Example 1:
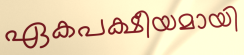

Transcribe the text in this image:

ഏകപക്ഷീയമായി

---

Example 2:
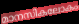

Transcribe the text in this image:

മാനസികലോകം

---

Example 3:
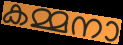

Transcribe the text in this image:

കമ്മനാ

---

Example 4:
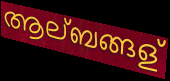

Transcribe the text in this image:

ആല്ബങ്ങള്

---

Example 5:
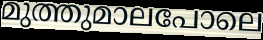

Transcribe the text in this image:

മുത്തുമാലപോലെ